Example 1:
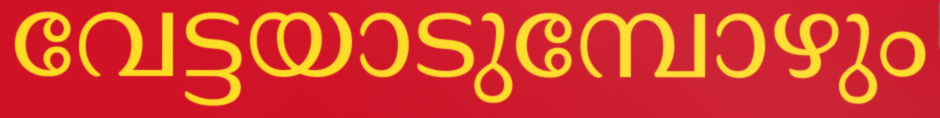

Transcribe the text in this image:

വേട്ടയാടുമ്പോഴും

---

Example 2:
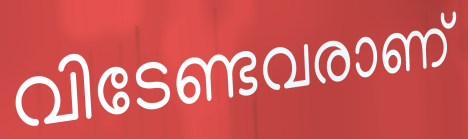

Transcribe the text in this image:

വിടേണ്ടവരാണ്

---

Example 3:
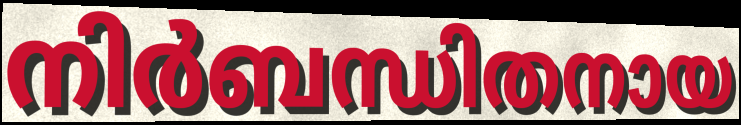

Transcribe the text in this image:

നിർബന്ധിതനായ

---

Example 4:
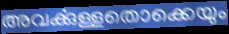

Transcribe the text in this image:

അവൎക്കുള്ളതൊക്കെയും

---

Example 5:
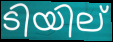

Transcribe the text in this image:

ടിയില്